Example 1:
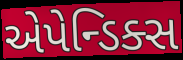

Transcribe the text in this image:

એપેન્ડિક્સ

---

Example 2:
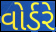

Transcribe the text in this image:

વોર્ડરે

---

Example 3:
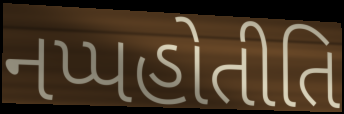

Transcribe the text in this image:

નપ્પહોતીતિ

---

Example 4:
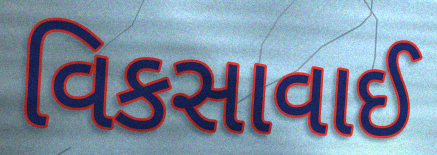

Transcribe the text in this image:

વિકસાવાઈ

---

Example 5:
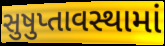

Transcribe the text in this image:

સુષુપ્તાવસ્થામાં